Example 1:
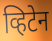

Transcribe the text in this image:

व्हिटेन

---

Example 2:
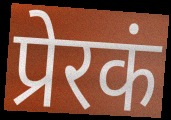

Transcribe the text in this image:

प्रेरकं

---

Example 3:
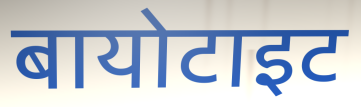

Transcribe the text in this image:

बायोटाइट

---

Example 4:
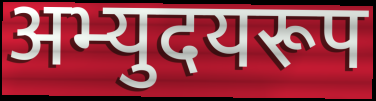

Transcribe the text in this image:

अभ्युदयरूप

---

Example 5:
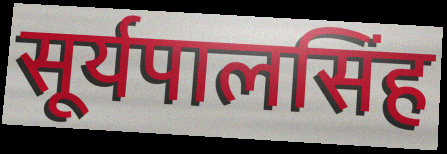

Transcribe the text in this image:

सूर्यपालसिंह